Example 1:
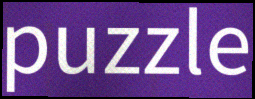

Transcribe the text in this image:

puzzle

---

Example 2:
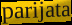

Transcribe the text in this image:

parijata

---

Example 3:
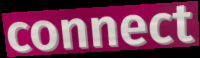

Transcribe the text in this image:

connect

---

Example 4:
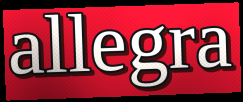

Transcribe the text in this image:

allegra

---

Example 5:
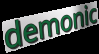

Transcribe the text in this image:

demonic